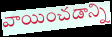
వాయించడాన్ని